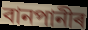
বানপানীৰ